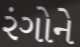
રંગોને